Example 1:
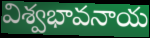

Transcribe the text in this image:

విశ్వభావనాయ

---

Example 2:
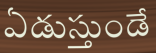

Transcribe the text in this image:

ఏడుస్తుండే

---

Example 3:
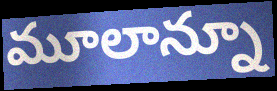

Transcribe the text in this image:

మూలాన్నూ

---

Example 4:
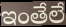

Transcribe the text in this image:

ఇంతేలే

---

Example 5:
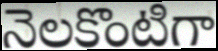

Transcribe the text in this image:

నెలకొంటిగా